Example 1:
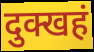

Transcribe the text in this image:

दुक्खहं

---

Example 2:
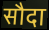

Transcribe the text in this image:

सौदा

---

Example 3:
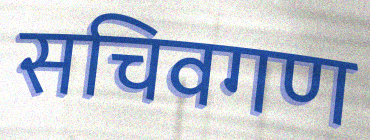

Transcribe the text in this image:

सचिवगण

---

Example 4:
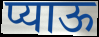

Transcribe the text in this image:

प्याऊ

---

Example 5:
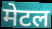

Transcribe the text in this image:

मेटल